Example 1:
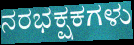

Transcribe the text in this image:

ನರಭಕ್ಷಕಗಳು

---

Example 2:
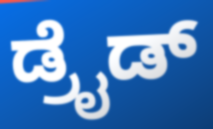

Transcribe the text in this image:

ಡ್ರೈಡ್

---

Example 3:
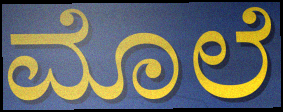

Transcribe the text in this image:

ಮೊಲೆ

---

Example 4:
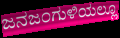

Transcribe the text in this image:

ಜನಜಂಗುಳಿಯಲ್ಲೂ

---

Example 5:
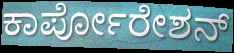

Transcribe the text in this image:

ಕಾರ್ಪೋರೇಶನ್